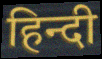
हिन्‍दी